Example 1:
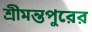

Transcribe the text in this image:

শ্রীমন্তপুরের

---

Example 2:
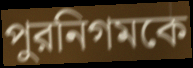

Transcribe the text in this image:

পুরনিগমকে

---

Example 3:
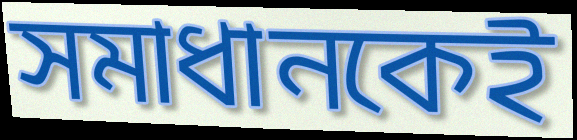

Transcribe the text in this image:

সমাধানকেই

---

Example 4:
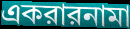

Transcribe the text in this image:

একরারনামা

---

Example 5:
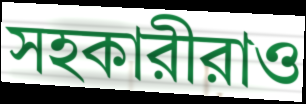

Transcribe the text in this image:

সহকারীরাও